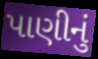
પાણીનું